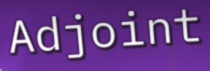
Adjoint